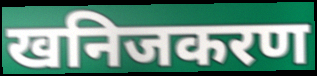
खनिजकरण